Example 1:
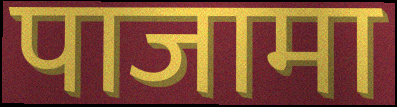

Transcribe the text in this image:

पाजामा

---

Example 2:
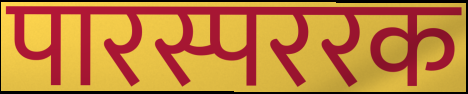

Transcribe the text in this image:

पारस्पररक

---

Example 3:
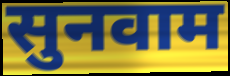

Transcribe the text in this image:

सुनवाम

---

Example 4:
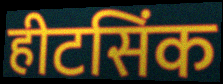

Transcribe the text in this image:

हीटसिंक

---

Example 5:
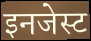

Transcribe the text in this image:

इनजेस्ट